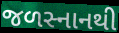
જળસ્નાનથી